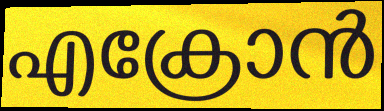
എക്രോൻ